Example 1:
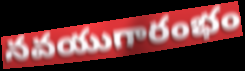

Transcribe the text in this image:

నవయుగారంభం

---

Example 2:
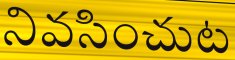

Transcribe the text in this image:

నివసించుట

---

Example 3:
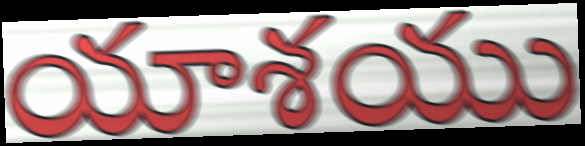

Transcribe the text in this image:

యాశయు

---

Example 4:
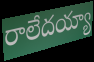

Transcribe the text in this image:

రాలేదయ్యా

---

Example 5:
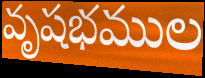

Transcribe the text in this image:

వృషభముల